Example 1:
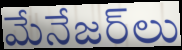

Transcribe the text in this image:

మేనేజర్‌లు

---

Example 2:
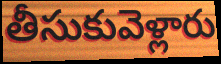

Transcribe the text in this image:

తీసుకువెళ్లారు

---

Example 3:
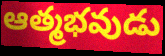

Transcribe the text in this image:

ఆత్మభవుడు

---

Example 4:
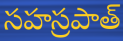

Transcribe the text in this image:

సహస్రపాత్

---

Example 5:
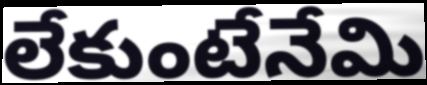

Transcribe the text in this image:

లేకుంటేనేమి